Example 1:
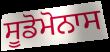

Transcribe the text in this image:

ਸੂਡੋਮੋਨਾਸ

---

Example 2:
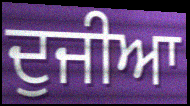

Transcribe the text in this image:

ਦੁਜੀਆ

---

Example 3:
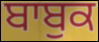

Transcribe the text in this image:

ਬਾਬੁਕ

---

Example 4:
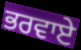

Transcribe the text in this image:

ਭਰਵਾਏ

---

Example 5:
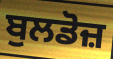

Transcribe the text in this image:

ਬੁਲਡੋਜ਼